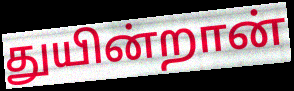
துயின்றான்